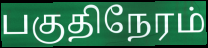
பகுதிநேரம்